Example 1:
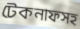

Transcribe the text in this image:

টেকনাফসহ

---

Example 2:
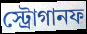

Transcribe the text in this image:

স্ট্রোগানফ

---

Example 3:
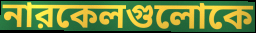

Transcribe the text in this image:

নারকেলগুলোকে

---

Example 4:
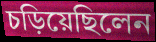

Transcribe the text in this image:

চড়িয়েছিলেন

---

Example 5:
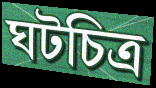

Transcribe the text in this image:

ঘটচিত্র